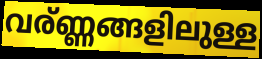
വര്ണ്ണങ്ങളിലുള്ള